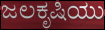
ಜಲಕೃಷಿಯು